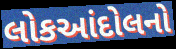
લોકઆંદોલનો